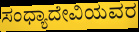
ಸಂಧ್ಯಾದೇವಿಯವರ